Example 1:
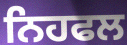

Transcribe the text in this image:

ਨਿਹਫਲ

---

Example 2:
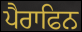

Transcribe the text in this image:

ਪੈਰਾਫਿਨ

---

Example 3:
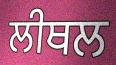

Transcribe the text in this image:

ਲੀਥਲ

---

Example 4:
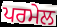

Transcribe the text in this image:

ਪਰਮੇਲ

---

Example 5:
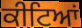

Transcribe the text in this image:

ਕੀਟਿਆਂ